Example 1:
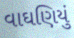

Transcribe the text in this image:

વાઘણિયું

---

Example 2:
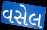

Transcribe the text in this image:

વસેલ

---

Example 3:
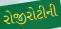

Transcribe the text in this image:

રોજીરોટીની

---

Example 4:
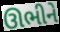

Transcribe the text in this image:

ઊભીને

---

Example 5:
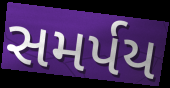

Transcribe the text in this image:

સમર્પય